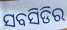
ସବସିଡିର